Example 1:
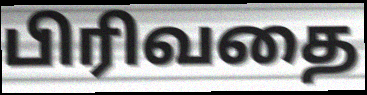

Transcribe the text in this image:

பிரிவதை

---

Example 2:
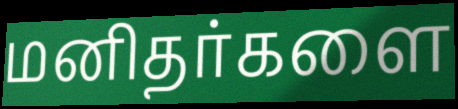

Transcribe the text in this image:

மனிதர்களை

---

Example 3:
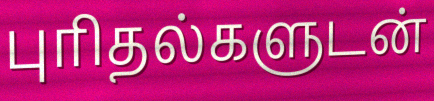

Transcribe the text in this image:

புரிதல்களுடன்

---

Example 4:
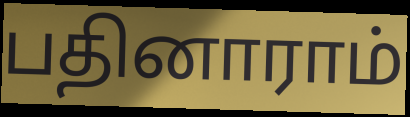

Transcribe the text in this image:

பதினாராம்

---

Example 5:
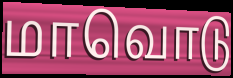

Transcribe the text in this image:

மாவொடு